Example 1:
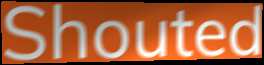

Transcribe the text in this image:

Shouted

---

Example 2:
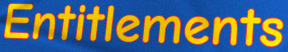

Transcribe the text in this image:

Entitlements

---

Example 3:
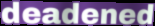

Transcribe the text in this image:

deadened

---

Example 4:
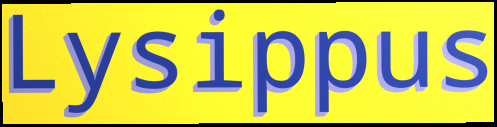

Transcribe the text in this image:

Lysippus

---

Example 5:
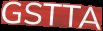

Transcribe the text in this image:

GSTTA